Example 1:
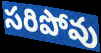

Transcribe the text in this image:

సరిపోవు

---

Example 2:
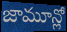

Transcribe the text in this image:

జామూన్లో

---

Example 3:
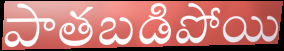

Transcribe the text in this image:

పాతబడిపోయి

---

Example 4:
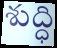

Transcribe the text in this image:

శుద్ధి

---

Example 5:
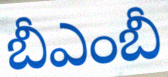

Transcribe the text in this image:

బీఎంబీ